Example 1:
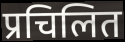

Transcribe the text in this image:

प्रचिलित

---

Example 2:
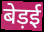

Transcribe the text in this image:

बेड़ई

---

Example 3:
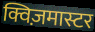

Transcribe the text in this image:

क्विज़मास्टर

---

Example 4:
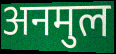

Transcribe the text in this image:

अनमुल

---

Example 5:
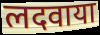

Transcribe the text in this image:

लदवाया